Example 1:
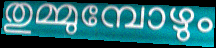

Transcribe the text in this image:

തുമ്മുമ്പോഴും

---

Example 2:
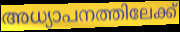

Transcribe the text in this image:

അധ്യാപനത്തിലേക്ക്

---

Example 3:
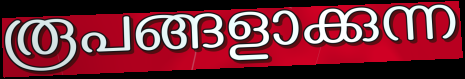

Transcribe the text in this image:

രൂപങ്ങളാക്കുന്ന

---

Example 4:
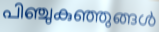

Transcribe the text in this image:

പിഞ്ചുകുഞ്ഞുങ്ങൾ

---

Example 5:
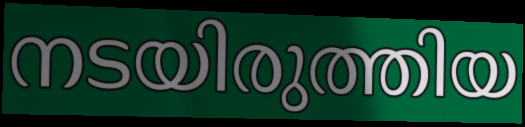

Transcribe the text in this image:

നടയിരുത്തിയ